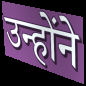
उन्‍होंने